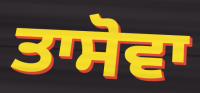
ਤਾਸੋਵਾ